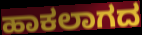
ಹಾಕಲಾಗದ